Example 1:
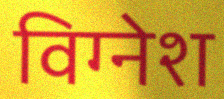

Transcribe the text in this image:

विग्‍नेश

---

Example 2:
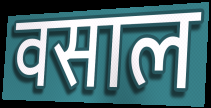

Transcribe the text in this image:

वसाल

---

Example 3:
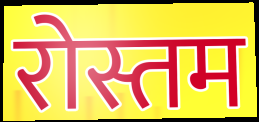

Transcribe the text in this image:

रोस्तम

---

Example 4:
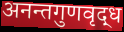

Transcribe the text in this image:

अनन्तगुणवृद्ध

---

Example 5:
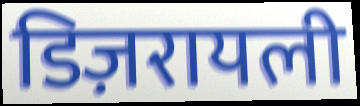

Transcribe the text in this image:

डिज़रायली